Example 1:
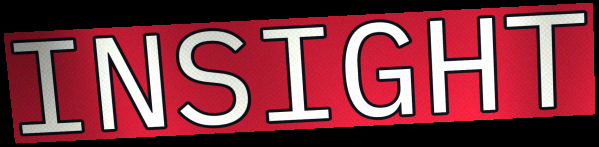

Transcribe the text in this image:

INSIGHT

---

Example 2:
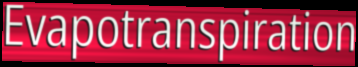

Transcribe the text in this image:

Evapotranspiration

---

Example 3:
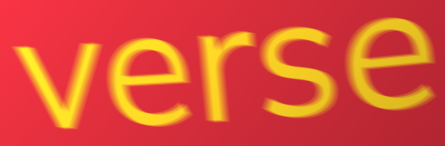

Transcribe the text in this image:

verse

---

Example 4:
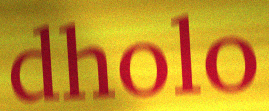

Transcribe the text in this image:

dholo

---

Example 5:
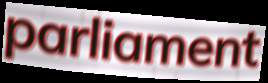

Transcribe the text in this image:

parliament